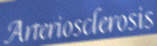
Arteriosclerosis